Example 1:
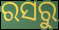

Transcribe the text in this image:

ରସରୁ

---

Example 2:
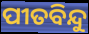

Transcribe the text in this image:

ପୀତବିନ୍ଦୁ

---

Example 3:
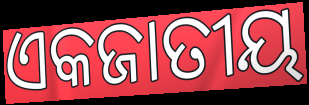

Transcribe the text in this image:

ଏକଜାତୀୟ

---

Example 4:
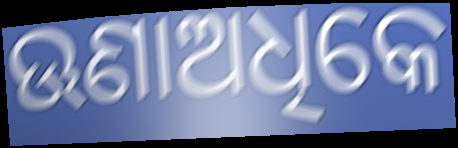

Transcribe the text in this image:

ଊଣାଅଧିକେ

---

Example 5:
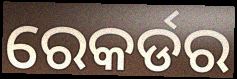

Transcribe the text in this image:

ରେକର୍ଡର